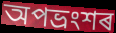
অপভ্ৰংশৰ